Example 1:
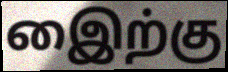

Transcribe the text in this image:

இைற்கு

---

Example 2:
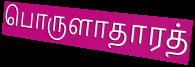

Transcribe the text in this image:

பொருளாதாரத்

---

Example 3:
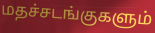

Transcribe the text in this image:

மதச்சடங்குகளும்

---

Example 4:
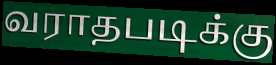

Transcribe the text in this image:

வராதபடிக்கு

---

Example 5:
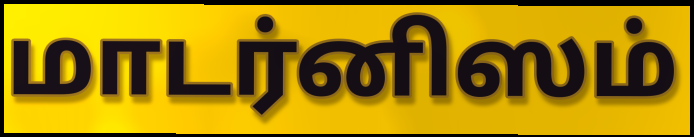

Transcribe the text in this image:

மாடர்னிஸம்